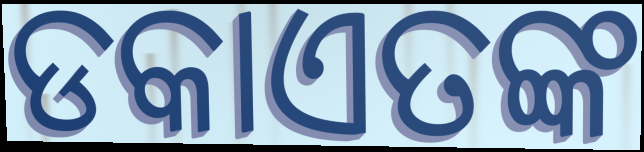
ଡକାଏତଙ୍କ